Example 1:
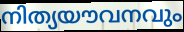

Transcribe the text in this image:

നിത്യയൗവനവും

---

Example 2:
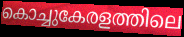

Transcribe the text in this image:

കൊച്ചുകേരളത്തിലെ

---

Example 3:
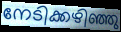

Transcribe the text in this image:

നേടിക്കഴിഞ്ഞു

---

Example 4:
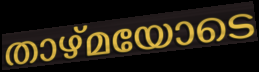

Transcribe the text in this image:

താഴ്മയോടെ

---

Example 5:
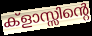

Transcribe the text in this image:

ക്ളാസ്സിന്റെ